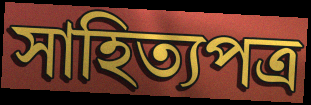
সাহিত্যপত্র